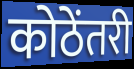
कोठेंतरी